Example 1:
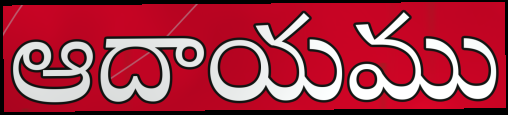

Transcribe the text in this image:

ఆదాయము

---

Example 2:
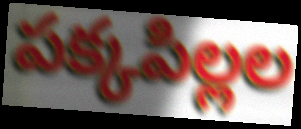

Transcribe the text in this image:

పక్కపిల్లల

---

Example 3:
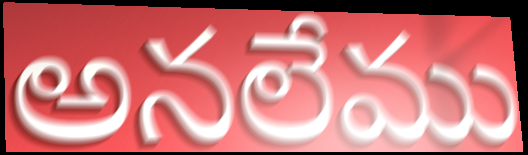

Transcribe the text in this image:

అనలేము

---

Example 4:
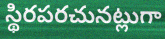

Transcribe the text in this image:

స్థిరపరచునట్లుగా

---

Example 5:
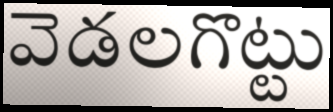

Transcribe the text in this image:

వెడలగొట్టు